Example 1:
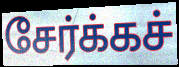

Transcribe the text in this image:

சேர்க்கச்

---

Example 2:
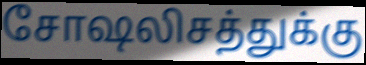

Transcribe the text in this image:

சோஷலிசத்துக்கு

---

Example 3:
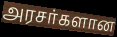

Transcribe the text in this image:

அரசர்களான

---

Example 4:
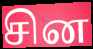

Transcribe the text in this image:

சின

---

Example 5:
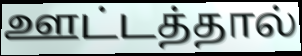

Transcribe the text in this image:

ஊட்டத்தால்